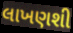
લાખણશી